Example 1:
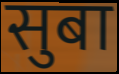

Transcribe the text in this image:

सुबा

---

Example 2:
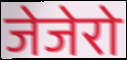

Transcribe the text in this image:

जेजेरो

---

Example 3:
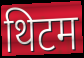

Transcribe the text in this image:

थिटम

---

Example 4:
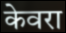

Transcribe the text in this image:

केवरा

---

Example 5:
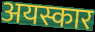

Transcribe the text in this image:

अयस्कार